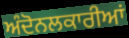
ਅੰਦੋਨਲਕਾਰੀਆਂ